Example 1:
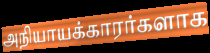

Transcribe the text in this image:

அநியாயக்காரர்களாக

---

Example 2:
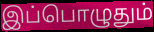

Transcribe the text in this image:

இப்பொழுதும்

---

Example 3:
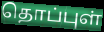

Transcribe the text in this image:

தொப்புள்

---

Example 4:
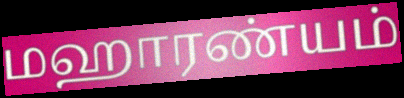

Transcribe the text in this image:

மஹாரண்யம்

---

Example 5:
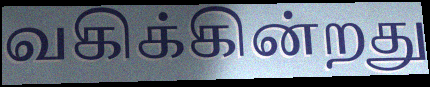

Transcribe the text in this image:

வகிக்கின்றது